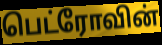
பெட்ரோவின்